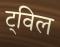
ट्विल